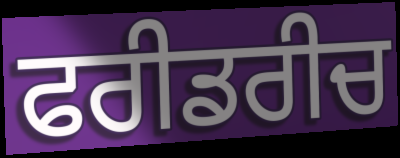
ਫਰੀਡਰੀਚ